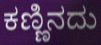
ಕಣ್ಣಿನದು